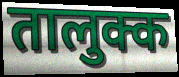
तालुक्क